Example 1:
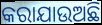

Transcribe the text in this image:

କରାଯାଉଅଛି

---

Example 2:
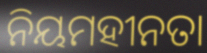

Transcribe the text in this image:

ନିୟମହୀନତା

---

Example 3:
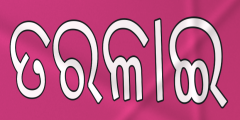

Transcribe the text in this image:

ତରଳାଇ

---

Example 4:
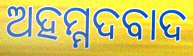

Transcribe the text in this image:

ଅହମ୍ମଦବାଦ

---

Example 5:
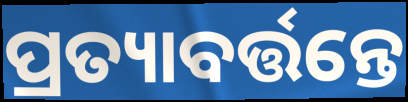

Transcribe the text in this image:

ପ୍ରତ୍ୟାବର୍ତ୍ତନ୍ତେ